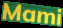
Mami